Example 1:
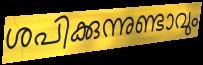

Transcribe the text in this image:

ശപിക്കുന്നുണ്ടാവും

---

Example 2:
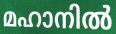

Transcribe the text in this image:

മഹാനിൽ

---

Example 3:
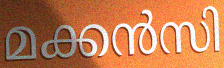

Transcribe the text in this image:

മക്കൻസി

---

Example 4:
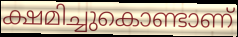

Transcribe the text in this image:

ക്ഷമിച്ചുകൊണ്ടാണ്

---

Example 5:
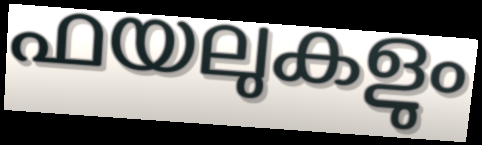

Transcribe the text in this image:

ഫയലുകളും